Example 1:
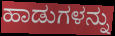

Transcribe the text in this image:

ಹಾಡುಗಳನ್ನು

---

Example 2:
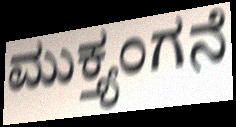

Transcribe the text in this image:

ಮುಕ್ತ್ಯಂಗನೆ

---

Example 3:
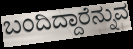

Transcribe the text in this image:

ಬಂದಿದ್ದಾರೆನ್ನುವ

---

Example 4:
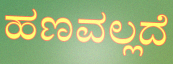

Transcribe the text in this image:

ಹಣವಲ್ಲದೆ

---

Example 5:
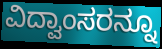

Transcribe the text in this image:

ವಿದ್ವಾಂಸರನ್ನೂ